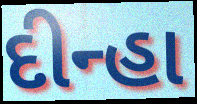
દીન્હા